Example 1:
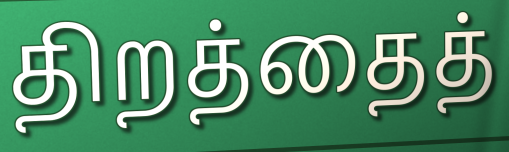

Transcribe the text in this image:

திறத்தைத்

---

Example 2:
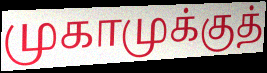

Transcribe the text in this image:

முகாமுக்குத்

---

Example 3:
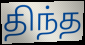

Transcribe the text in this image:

திந்த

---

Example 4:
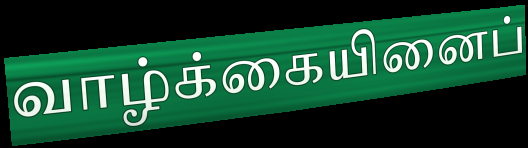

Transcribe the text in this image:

வாழ்க்கையினைப்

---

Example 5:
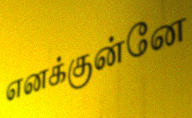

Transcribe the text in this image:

எனக்குன்னே